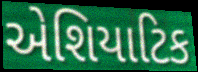
એશિયાટિક